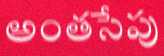
అంతసేపు